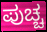
ಪುಚ್ಚ